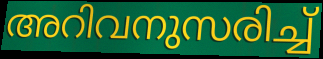
അറിവനുസരിച്ച്